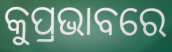
କୁପ୍ରଭାବରେ